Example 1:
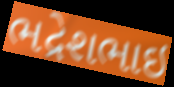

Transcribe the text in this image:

ભદ્રેશભાઇ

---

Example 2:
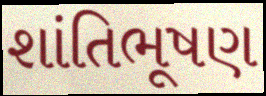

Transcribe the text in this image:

શાંતિભૂષણ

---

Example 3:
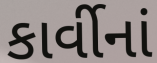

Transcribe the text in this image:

કાર્વીનાં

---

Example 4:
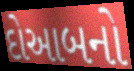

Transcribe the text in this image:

દોઆબનો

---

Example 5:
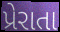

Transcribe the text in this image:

પ્રેરાતા